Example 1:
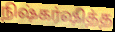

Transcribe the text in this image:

நிஷ்கர்ஷித்த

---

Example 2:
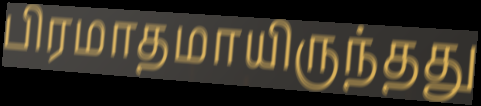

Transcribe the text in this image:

பிரமாதமாயிருந்தது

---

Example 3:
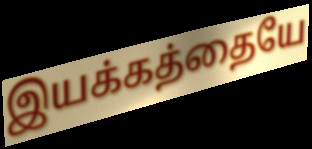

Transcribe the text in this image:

இயக்கத்தையே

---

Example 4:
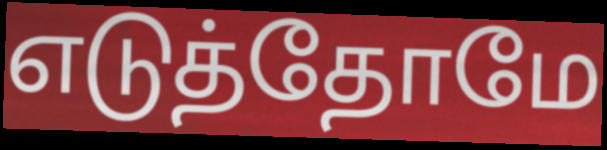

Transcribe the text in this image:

எடுத்தோமே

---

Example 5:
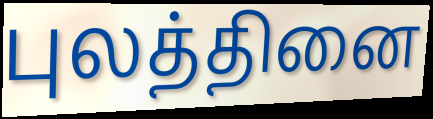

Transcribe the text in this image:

புலத்தினை